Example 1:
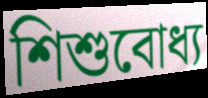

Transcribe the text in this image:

শিশুবোধ্য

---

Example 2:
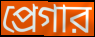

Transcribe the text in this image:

প্রেগার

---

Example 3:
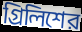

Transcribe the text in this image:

গ্রিলিশের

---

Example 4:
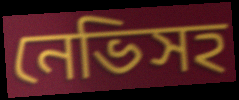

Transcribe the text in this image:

নেভিসহ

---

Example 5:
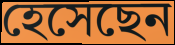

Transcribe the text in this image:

হেসেছেন